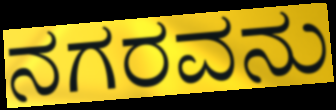
ನಗರವನು